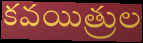
కవయిత్రుల